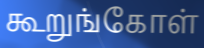
கூறுங்கோள்